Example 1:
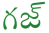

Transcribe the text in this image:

గజ్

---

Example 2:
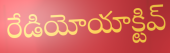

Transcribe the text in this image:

రేడియోయాక్టివ్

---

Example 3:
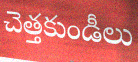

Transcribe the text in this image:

చెత్తకుండీలు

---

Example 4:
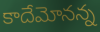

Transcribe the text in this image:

కాదేమోనన్న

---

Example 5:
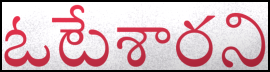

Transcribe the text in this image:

ఓటేశారని